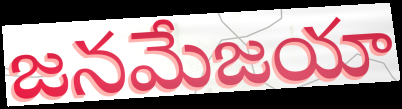
జనమేజయా